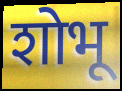
शोभू